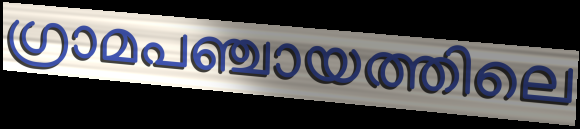
ഗ്രാമപഞ്ചായത്തിലെ